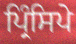
ਪ੍ਰਿੰਸਿਪੇ